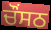
ਚੌਂਸਠ